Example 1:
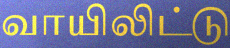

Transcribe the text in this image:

வாயிலிட்டு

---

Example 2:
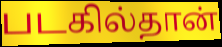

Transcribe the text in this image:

படகில்தான்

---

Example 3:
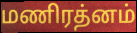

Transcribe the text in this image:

மணிரத்னம்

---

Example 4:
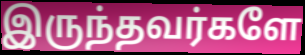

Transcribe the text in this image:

இருந்தவர்களே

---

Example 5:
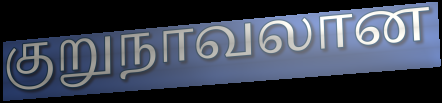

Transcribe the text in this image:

குறுநாவலான